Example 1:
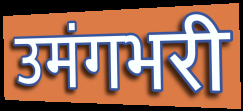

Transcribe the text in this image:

उमंगभरी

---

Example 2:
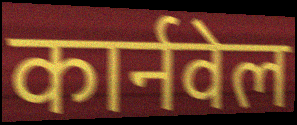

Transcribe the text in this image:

कार्नवेल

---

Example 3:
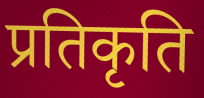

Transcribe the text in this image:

प्रतिकृति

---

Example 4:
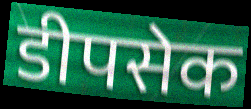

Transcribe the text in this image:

डीपसेक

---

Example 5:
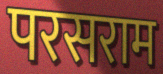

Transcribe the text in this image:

परसराम